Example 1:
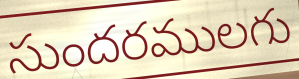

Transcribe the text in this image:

సుందరములగు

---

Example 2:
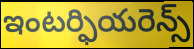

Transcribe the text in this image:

ఇంటర్ఫియరెన్స్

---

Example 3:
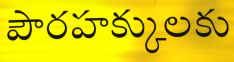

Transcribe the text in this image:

పౌరహక్కులకు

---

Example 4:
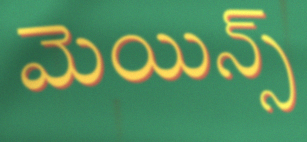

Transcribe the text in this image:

మెయిన్స్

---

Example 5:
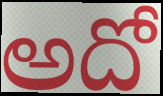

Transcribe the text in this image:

అదో